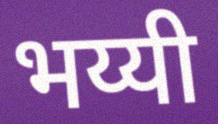
भय्यी